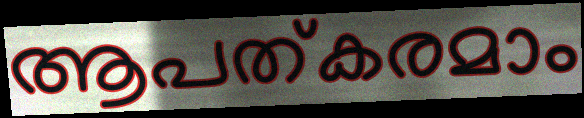
ആപത്കരമാം